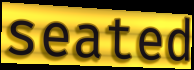
seated